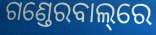
ଗଣ୍ଡେରବାଲ୍‌ରେ